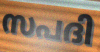
സപദി